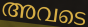
അവടെ